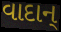
વાદાન્